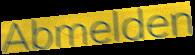
Abmelden